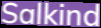
Salkind